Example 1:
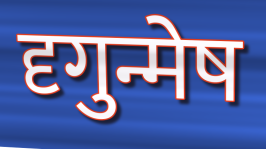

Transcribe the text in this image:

दृगुन्मेष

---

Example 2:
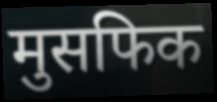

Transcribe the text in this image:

मुसफिक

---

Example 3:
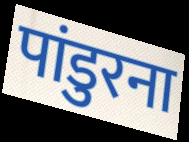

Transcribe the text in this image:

पांडुरना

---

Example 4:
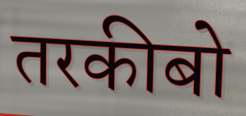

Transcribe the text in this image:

तरकीबो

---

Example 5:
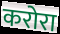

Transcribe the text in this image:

करोरा